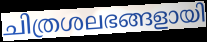
ചിത്രശലഭങ്ങളായി